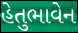
હેતુભાવેન